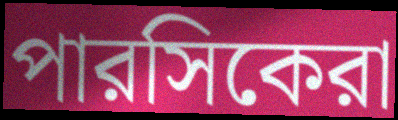
পারসিকেরা